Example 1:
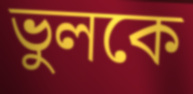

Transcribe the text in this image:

ভুলকে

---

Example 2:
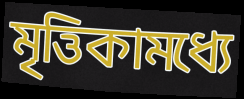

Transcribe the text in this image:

মৃত্তিকামধ্যে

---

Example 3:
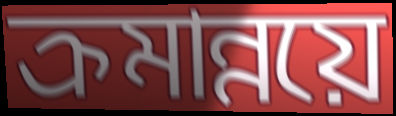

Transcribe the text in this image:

ক্রমান্নয়ে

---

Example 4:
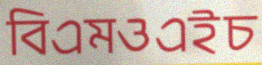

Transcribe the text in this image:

বিএমওএইচ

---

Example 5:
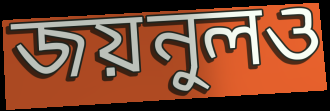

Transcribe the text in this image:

জয়নুলও